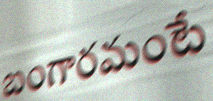
బంగారమంటే